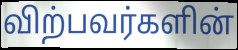
விற்பவர்களின்